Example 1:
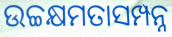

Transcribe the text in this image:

ଉଚ୍ଚକ୍ଷମତାସମ୍ପନ୍ନ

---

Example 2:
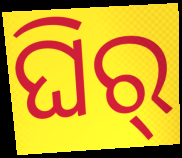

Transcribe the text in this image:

ଘିର୍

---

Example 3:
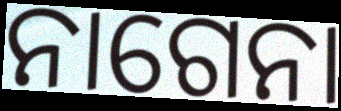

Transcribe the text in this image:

ନାଗେନା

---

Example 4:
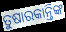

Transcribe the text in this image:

ତୁଷାରକାନ୍ତିଙ୍କ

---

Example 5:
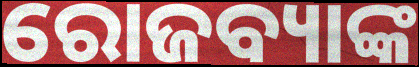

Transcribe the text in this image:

ରୋଜବ୍ୟାଙ୍କ